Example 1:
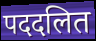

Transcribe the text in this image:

पददलित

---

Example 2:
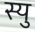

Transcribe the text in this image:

स्यु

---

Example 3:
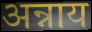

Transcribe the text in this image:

अन्नाय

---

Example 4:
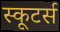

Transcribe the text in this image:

स्कूटर्स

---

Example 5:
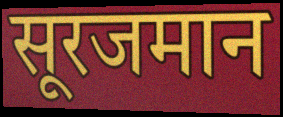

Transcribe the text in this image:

सूरजमान